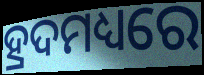
ହ୍ରଦମଧ୍ୟରେ